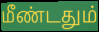
மீண்டதும்